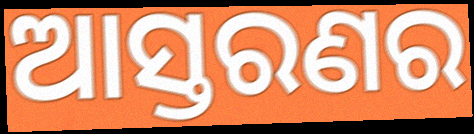
ଆସ୍ତରଣର